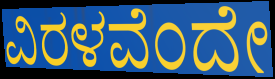
ವಿರಳವೆಂದೇ